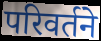
परिवर्तने